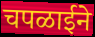
चपळाईने